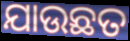
ଯାଉଛତ